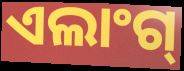
ଏଲାଂଗ୍